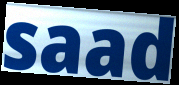
saad